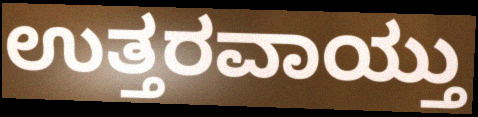
ಉತ್ತರವಾಯ್ತು